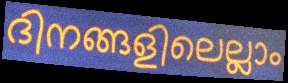
ദിനങ്ങളിലെല്ലാം